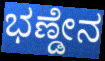
ಭಣ್ಡೇನ